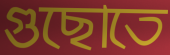
গুছোতে